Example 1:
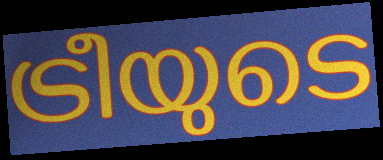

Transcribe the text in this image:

ട്രീയുടെ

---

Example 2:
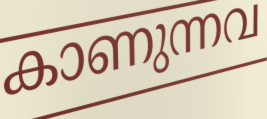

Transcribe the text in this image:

കാണുന്നവ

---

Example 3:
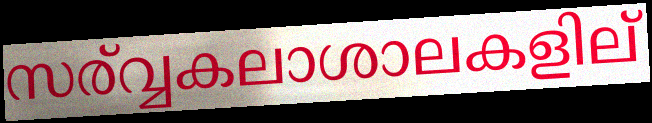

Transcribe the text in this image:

സര്വ്വകലാശാലകളില്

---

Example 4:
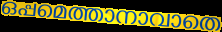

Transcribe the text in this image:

ഒപ്പമെത്താനാവാതെ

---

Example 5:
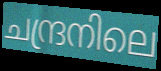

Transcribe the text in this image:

ചന്ദ്രനിലെ